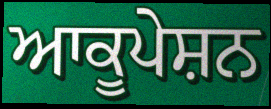
ਆਕੂਪੇਸ਼ਨ